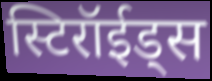
स्टिरॉईड्स